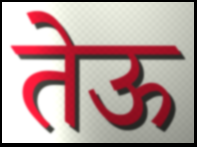
तेऊ